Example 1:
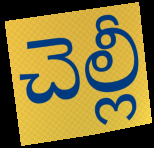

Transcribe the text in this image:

చెల్లీ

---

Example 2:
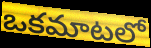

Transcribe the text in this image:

ఒకమాటలో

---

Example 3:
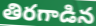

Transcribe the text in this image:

తిరగాడిన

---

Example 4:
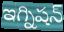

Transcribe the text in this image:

ఇగ్నిషన్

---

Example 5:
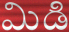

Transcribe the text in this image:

మిడి